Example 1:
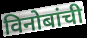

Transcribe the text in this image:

विनोबांची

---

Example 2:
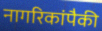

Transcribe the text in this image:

नागरिकांपैकी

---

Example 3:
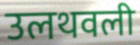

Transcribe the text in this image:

उलथवली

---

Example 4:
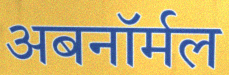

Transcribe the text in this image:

अबनॉर्मल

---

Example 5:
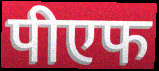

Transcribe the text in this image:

पीएफ